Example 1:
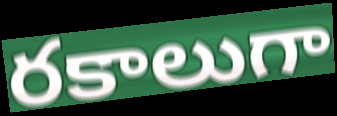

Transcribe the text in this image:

రకాలుగా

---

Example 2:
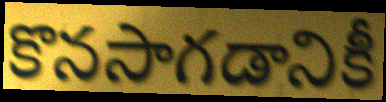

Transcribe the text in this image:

కొనసాగడానికీ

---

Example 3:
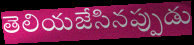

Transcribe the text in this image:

తెలియజేసినప్పుడు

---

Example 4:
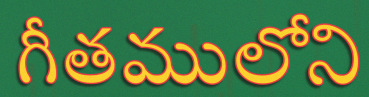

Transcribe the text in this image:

గీతములోని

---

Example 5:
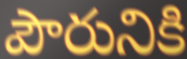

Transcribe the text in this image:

పౌరునికి